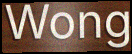
Wong